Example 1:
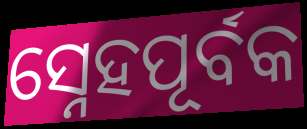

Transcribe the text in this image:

ସ୍ନେହପୂର୍ବକ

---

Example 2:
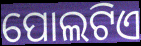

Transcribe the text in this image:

ପୋଲଟିଏ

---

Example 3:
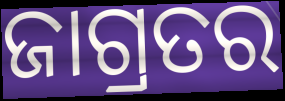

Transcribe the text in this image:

ଜାଗ୍ରତର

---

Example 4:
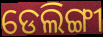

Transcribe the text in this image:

ଡେଲିଙ୍ଗୀ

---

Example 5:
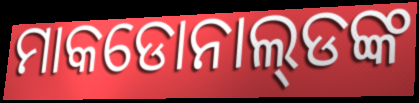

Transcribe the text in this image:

ମାକଡୋନାଲ୍‍ଡଙ୍କ